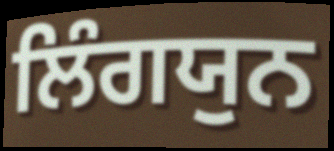
ਲਿੰਗਯੁਨ